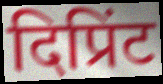
दिप्रिंट